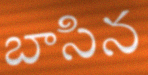
బాసిన